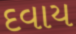
દવાય